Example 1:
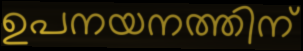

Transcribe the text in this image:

ഉപനയനത്തിന്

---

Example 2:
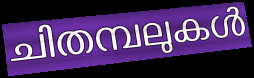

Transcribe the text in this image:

ചിതമ്പലുകൾ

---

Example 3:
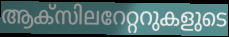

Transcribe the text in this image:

ആക്സിലറേറ്ററുകളുടെ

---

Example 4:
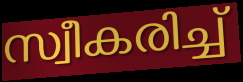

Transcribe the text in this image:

സ്വീകരിച്ച്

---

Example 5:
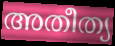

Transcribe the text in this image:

അതീത്യ